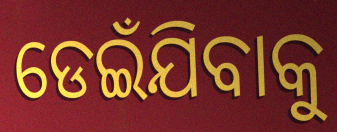
ଡେଇଁଯିବାକୁ